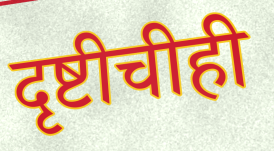
दृष्टीचीही